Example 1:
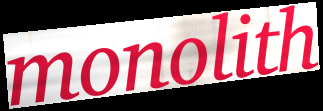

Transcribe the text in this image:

monolith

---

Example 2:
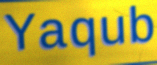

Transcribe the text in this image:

Yaqub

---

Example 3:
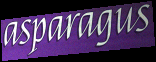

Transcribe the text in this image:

asparagus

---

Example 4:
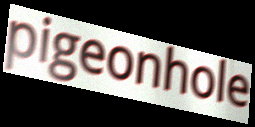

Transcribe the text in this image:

pigeonhole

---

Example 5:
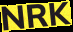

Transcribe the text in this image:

NRK